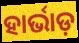
ହାର୍ଭାଡ଼